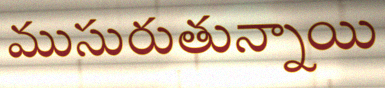
ముసురుతున్నాయి